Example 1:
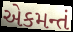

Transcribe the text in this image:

એકમન્તં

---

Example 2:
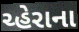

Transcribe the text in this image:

ચ્હેરાના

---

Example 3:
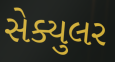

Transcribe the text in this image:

સેક્યુલર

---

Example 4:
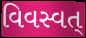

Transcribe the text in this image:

વિવસ્વત્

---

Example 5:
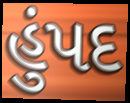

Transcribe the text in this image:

હુંપદ